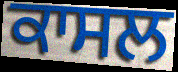
ਕਾਸਲ